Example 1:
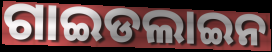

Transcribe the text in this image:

ଗାଇଡଲାଇନ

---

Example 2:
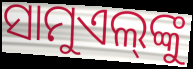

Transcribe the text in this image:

ସାମୁଏଲ୍‌ଙ୍କୁ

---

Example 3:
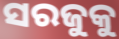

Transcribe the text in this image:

ସରଜୁକୁ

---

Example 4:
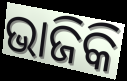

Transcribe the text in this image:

ଭାଜିକି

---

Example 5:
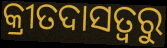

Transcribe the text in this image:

କ୍ରୀତଦାସତ୍ୱରୁ